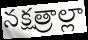
నక్షత్రాల్లా